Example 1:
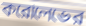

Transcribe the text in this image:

করোলেভের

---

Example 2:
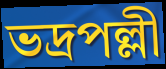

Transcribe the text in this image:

ভদ্রপল্লী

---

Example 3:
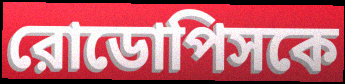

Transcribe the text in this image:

রোডোপিসকে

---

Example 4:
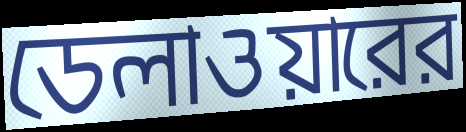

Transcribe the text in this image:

ডেলাওয়ারের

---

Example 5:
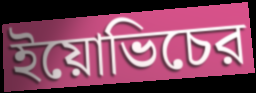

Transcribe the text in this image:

ইয়োভিচের